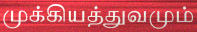
முக்கியத்துவமும்